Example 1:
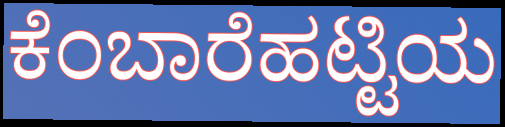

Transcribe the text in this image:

ಕೆಂಬಾರೆಹಟ್ಟಿಯ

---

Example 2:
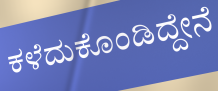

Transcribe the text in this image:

ಕಳೆದುಕೊಂಡಿದ್ದೇನೆ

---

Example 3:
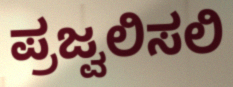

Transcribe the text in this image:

ಪ್ರಜ್ವಲಿಸಲಿ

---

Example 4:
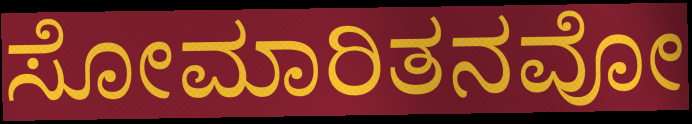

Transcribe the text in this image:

ಸೋಮಾರಿತನವೋ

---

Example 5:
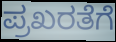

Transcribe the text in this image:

ಪ್ರಖರತೆಗೆ